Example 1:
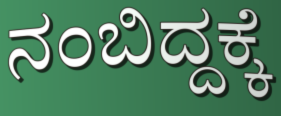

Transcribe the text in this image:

ನಂಬಿದ್ದಕ್ಕೆ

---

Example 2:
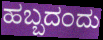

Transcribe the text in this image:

ಹಬ್ಬದಂದು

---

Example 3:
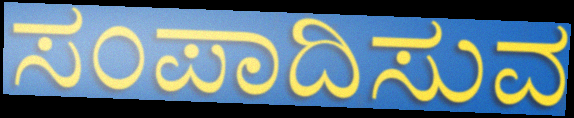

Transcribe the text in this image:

ಸಂಪಾದಿಸುವ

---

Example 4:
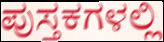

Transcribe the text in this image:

ಪುಸ್ತಕಗಳಲ್ಲಿ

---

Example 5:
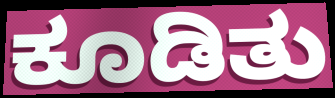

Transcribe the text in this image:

ಕೂಡಿತು